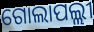
ଗୋଲାପଲ୍ଲୀ